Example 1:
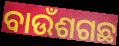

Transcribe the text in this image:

ବାଉଁଶଗଛ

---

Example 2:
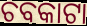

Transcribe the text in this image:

ଚବକାଟା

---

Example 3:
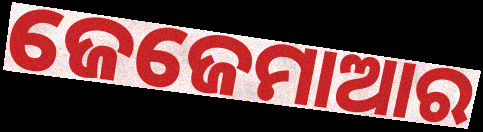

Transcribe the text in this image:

ଜେଜେମାଆର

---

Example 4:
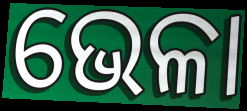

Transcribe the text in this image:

ଭେଳା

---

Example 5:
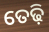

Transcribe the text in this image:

ତେଢ଼ି